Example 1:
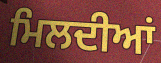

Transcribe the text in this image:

ਮਿਲਦੀਆਂ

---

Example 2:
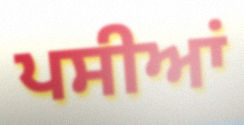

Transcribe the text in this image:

ਪਸੀਆਂ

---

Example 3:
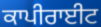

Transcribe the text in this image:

ਕਾਪੀਰਾਈਟ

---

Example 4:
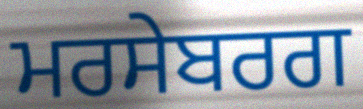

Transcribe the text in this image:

ਮਰਸੇਬਰਗ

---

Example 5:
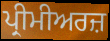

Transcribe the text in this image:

ਪ੍ਰੀਮੀਅਰਜ਼